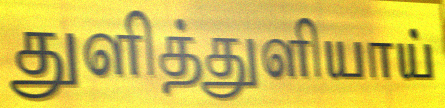
துளித்துளியாய்